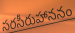
సరసీరుహాననం